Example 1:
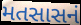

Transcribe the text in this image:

મતસાસનં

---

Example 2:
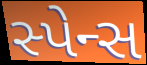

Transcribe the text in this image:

સ્પેન્સ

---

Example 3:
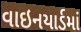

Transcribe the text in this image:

વાઇનયાર્ડમાં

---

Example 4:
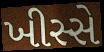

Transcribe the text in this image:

ખીસ્સે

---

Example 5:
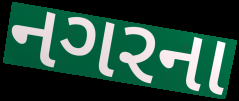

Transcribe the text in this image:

નગરના